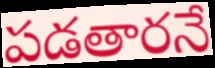
పడతారనే